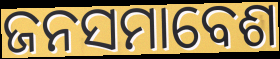
ଜନସମାବେଶ